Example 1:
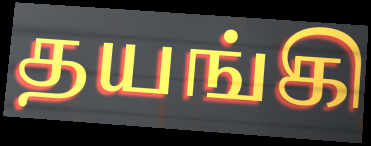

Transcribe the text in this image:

தயங்கி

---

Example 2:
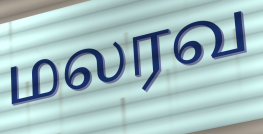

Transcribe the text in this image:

மலரவ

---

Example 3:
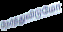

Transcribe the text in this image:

நேர்ந்துவிடுமோ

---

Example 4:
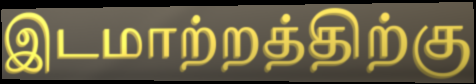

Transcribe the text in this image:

இடமாற்றத்திற்கு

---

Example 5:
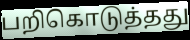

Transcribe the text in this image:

பறிகொடுத்தது